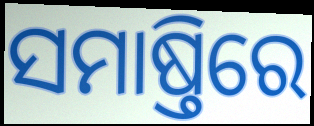
ସମାଷ୍ତିରେ